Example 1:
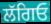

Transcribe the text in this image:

ਲੱਗਿਓ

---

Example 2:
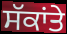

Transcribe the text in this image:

ਸੱਕਾਂਤੇ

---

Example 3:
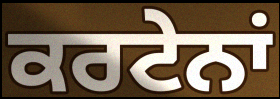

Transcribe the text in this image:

ਕਰਟੇਨਾਂ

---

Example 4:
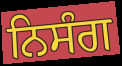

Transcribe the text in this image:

ਨਿਸੰਗ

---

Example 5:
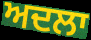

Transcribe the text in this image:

ਅਦਲਾ